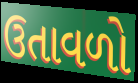
ઉતાવળો